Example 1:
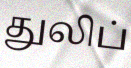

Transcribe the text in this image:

துலிப்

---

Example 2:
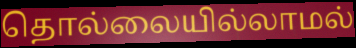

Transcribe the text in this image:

தொல்லையில்லாமல்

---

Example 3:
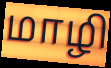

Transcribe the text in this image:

மாழி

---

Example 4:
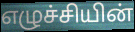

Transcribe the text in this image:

எழுச்சியின்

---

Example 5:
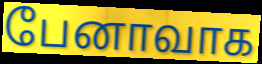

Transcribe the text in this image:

பேனாவாக